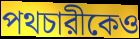
পথচারীকেও